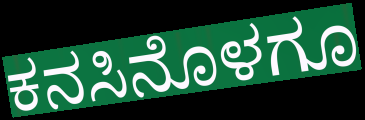
ಕನಸಿನೊಳಗೂ